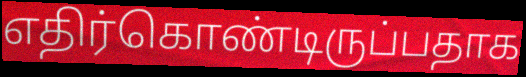
எதிர்கொண்டிருப்பதாக